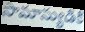
సామాన్యుడికి